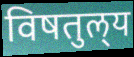
विषतुल्य